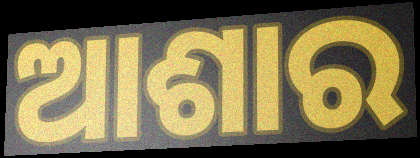
ଆଶାର